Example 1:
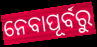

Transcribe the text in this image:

ନେବାପୂର୍ବରୁ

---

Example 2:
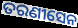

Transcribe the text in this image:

ତରଣୀସେନ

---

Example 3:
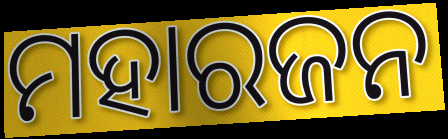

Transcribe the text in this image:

ମହାରଜନ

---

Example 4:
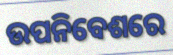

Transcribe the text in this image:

ଉପନିବେଶରେ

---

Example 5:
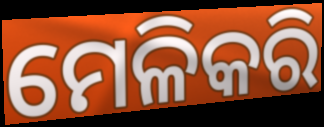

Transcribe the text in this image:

ମେଳିକରି